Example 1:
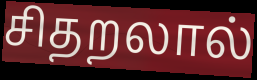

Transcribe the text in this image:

சிதறலால்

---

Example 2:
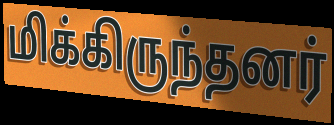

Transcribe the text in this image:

மிக்கிருந்தனர்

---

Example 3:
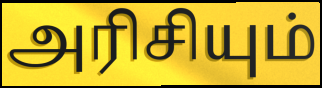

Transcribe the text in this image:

அரிசியும்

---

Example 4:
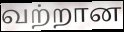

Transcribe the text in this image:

வற்றான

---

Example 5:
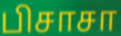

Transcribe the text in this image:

பிசாசா